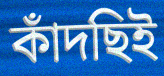
কাঁদছিই